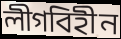
লীগবিহীন